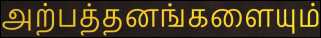
அற்பத்தனங்களையும்